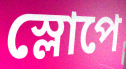
স্লোপে